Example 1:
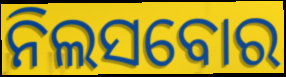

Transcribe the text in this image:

ନିଲସବୋର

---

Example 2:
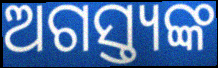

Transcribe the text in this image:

ଅଗସ୍ତ୍ୟଙ୍କ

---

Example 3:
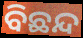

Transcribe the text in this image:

ବିଛନ୍ଦ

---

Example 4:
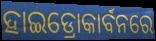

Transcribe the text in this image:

ହାଇଡ୍ରୋକାର୍ବନରେ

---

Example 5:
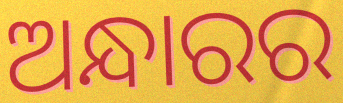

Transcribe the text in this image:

ଅନ୍ଧାରର